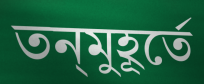
তন্‌মুহূর্তে